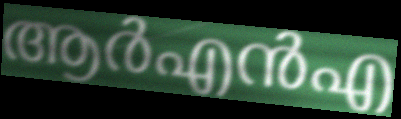
ആർഎൻഎ